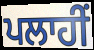
ਪਲਾਹੀਂ